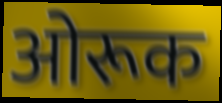
ओरूक